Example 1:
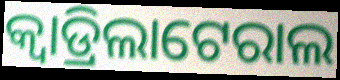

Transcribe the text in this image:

କ୍ୱାଡ୍ରିଲାଟେରାଲ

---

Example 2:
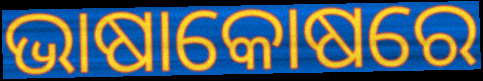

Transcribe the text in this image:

ଭାଷାକୋଷରେ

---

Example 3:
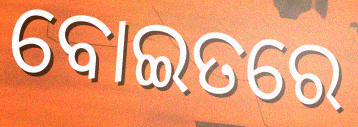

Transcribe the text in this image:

ବୋଇତରେ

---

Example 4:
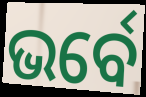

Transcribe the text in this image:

ଭର୍ବେ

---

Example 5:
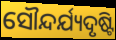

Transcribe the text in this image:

ସୌନ୍ଦର୍ଯ୍ୟଦୃଷ୍ଟି